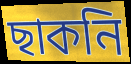
ছাকনি